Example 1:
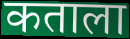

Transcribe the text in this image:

कताला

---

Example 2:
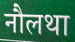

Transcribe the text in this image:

नौलथा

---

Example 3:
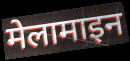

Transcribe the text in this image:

मेलामाइन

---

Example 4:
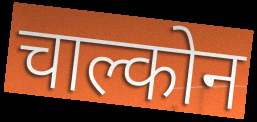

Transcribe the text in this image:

चाल्कोन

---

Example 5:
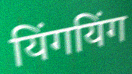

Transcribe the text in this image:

यिंगयिंग